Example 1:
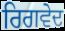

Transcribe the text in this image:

ਰਿਗਵੇਦ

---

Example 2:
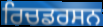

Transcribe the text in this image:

ਰਿਚਡਰਸਨ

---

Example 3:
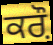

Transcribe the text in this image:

ਕਰ਼ੌ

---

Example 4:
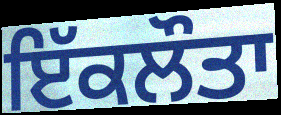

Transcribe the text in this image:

ਇੱਕਲੌਤਾ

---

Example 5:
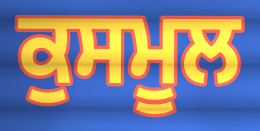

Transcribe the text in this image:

ਕੁਸਮੂਲ